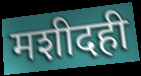
मशीदही